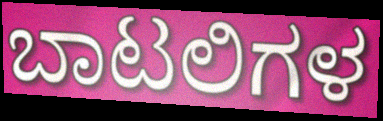
ಬಾಟಲಿಗಳ